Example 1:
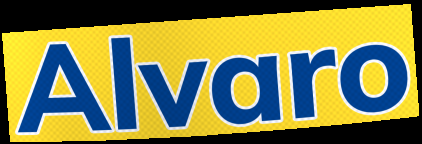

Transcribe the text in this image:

Alvaro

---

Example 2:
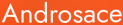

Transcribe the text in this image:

Androsace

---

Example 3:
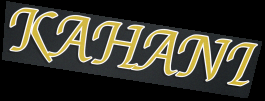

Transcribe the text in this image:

KAHANI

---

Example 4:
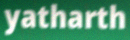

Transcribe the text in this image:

yatharth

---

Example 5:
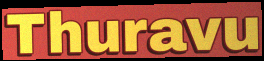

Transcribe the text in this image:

Thuravu